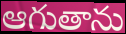
ఆగుతాను